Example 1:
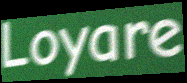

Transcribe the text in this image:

Loyare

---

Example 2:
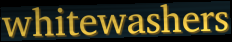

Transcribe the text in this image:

whitewashers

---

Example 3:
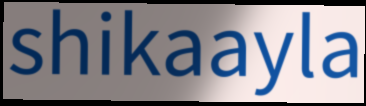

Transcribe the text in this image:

shikaayla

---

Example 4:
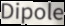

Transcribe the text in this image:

Dipole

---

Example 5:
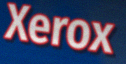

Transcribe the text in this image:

Xerox